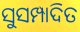
ସୁସମ୍ପାଦିତ